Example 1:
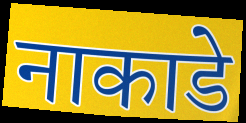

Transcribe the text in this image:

नाकाडे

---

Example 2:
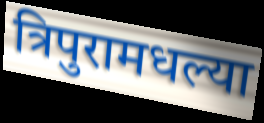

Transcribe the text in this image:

त्रिपुरामधल्या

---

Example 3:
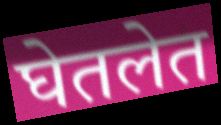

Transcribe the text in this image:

घेतलेत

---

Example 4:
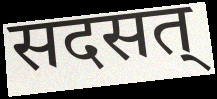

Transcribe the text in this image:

सदसत्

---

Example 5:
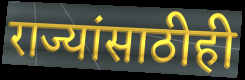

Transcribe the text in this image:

राज्यांसाठीही